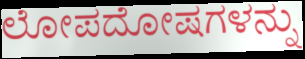
ಲೋಪದೋಷಗಳನ್ನು